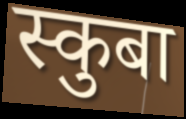
स्कुबा